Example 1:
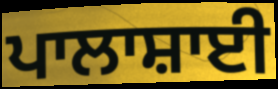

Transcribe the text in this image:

ਪਾਲਾਸ਼ਾਈ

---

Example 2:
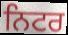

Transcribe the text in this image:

ਨਿਟਰ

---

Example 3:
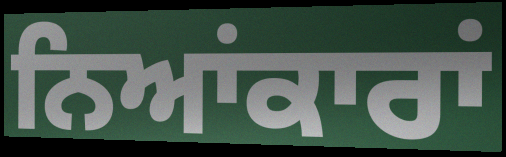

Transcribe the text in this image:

ਨਿਆਂਕਾਰਾਂ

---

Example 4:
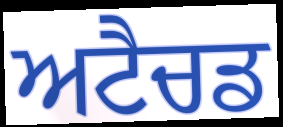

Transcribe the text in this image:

ਅਟੈਚਡ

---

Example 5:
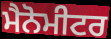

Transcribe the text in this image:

ਮੈਨੋਮੀਟਰ